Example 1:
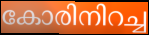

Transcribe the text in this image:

കോരിനിറച്ച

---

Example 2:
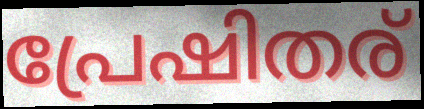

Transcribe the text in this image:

പ്രേഷിതര്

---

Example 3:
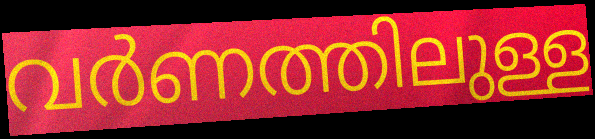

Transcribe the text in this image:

വർണത്തിലുള്ള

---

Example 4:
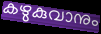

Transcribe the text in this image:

കഴുകുവാനും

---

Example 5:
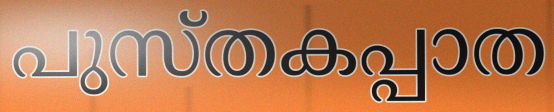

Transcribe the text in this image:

പുസ്തകപ്പാത